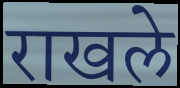
राखले